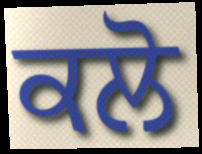
ਕਲੋ